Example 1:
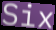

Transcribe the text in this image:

Six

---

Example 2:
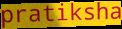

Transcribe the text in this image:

pratiksha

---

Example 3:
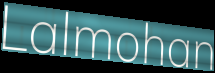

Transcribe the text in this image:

Lalmohan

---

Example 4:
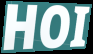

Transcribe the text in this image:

HOI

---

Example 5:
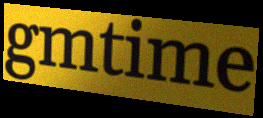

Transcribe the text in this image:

gmtime